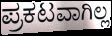
ಪ್ರಕಟವಾಗಿಲ್ಲ